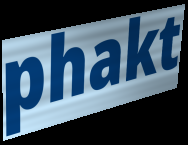
phakt